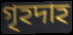
গৃহদাহ